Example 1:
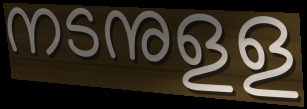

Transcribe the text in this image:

നടനുളള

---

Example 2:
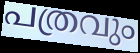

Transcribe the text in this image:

പത്രവും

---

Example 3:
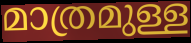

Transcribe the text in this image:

മാത്രമുള്ള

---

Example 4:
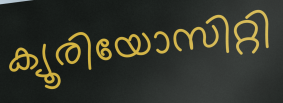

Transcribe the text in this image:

ക്യൂരിയോസിറ്റി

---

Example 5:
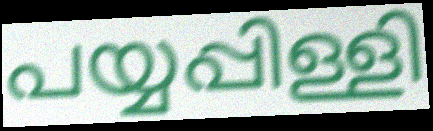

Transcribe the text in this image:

പയ്യപ്പിള്ളി